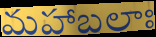
మహాబలాః